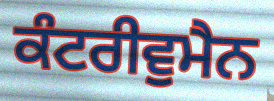
ਕੰਟਰੀਵੁਮੈਨ